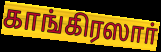
காங்கிரஸார்